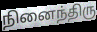
நினைந்திரு